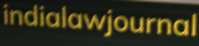
indialawjournal